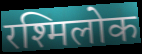
रश्मिलोक